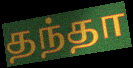
தந்தா